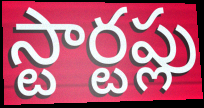
స్టార్టప్లు